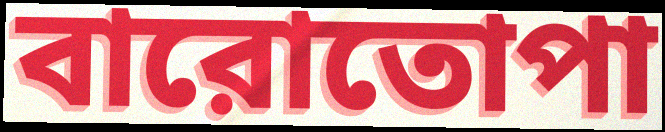
বারোতোপা